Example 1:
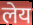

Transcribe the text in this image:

लेय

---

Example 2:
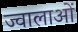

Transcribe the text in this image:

ज्वालाओं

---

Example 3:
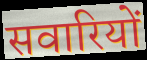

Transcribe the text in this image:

सवारियों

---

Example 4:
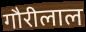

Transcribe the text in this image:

गौरीलाल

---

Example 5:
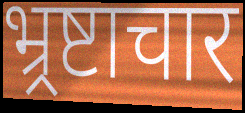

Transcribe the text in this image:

भ्र्रष्टाचार